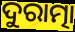
ଦୁରାତ୍ମା